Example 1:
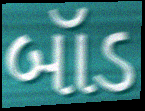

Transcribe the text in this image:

બૉડ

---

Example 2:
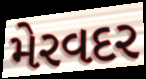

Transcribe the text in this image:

મેરવદર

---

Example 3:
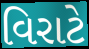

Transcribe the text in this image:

વિરાટે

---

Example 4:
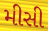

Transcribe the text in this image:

મીસી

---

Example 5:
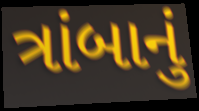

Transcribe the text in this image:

ત્રાંબાનું